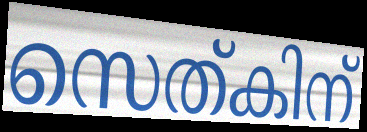
സെത്കിന്